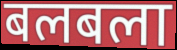
बलबला